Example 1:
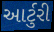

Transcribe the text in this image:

આર્ટુરી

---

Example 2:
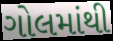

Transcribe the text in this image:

ગોલમાંથી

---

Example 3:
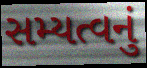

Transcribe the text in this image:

સમ્યત્વનું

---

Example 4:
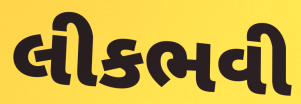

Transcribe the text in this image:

લીકભવી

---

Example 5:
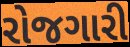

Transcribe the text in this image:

રોજગારી